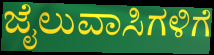
ಜೈಲುವಾಸಿಗಳಿಗೆ